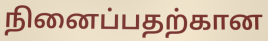
நினைப்பதற்கான